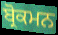
ਬ੍ਰੋਕਮਨ